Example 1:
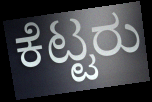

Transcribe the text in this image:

ಕೆಟ್ಟರು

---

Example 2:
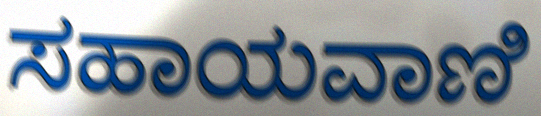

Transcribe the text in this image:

ಸಹಾಯವಾಣಿ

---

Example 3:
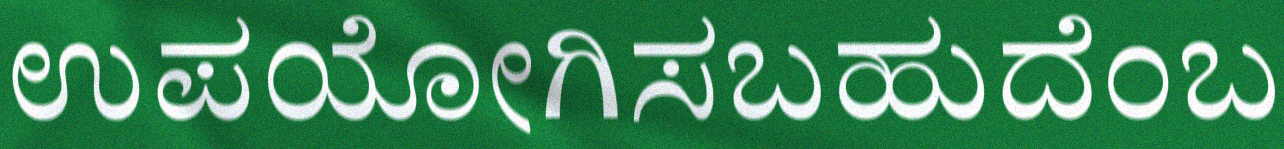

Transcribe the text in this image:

ಉಪಯೋಗಿಸಬಹುದೆಂಬ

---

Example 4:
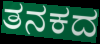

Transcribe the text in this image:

ತನಕದ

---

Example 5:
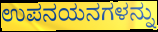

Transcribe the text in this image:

ಉಪನಯನಗಳನ್ನು